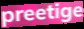
preetige